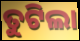
ତୁଟିଲା